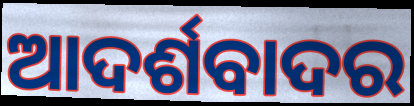
ଆଦର୍ଶବାଦର